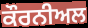
ਕੌਰਨੀਅਲ